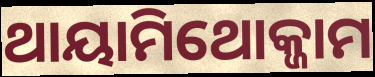
ଥାୟାମିଥୋକ୍ଜାମ